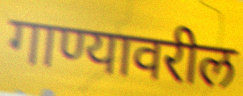
गाण्यावरील